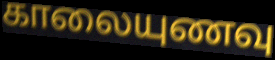
காலையுணவு